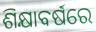
ଶିକ୍ଷାବର୍ଷରେ